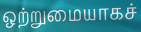
ஒற்றுமையாகச்